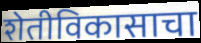
शेतीविकासाचा